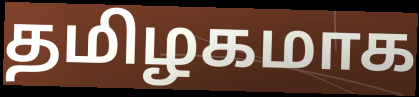
தமிழகமாக